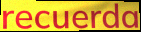
recuerda